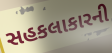
સહકલાકારની